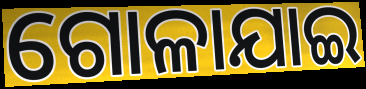
ଗୋଳାଯାଇ